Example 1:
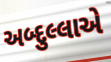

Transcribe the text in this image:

અબ્દુલ્લાએ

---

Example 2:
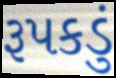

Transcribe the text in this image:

રૂપકડું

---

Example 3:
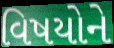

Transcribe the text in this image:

વિષયોને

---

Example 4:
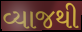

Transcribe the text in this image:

વ્યાજથી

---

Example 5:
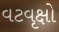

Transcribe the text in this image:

વટવૃક્ષો